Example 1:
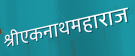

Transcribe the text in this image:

श्रीएकनाथमहाराज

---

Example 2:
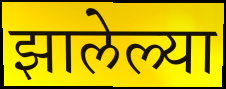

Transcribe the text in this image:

झालेल्या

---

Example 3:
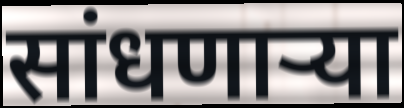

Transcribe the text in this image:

सांधणार्‍या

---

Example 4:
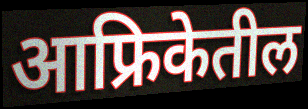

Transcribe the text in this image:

आफ्रिकेतील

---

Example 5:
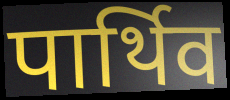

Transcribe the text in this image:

पार्थिव